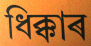
ধিক্কাৰ